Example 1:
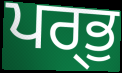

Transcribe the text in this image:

ਪਰ੍ਭੁ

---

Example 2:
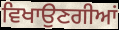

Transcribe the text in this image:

ਵਿਖਾਉਣਗੀਆਂ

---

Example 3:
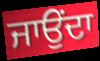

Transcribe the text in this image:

ਜਾਉਂਦਾ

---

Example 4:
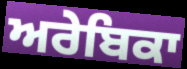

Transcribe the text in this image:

ਅਰੇਬਿਕਾ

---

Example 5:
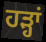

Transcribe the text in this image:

ਹਡ਼੍ਹਾਂ